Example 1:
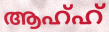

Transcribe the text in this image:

ആഹ്ഹ്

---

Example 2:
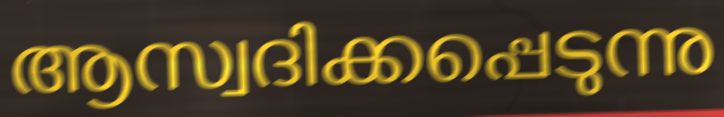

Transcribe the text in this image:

ആസ്വദിക്കപ്പെടുന്നു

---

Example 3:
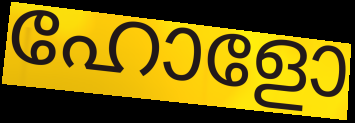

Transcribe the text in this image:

ഹോളോ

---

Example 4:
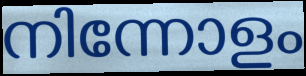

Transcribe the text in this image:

നിന്നോളം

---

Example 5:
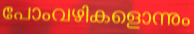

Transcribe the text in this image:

പോംവഴികളൊന്നും